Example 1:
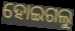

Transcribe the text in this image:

ହୋଇଗଲୁ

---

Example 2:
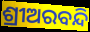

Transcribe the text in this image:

ଶ୍ରୀଅରବନ୍ଦି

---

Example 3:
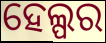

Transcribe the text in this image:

ହେଲ୍ପର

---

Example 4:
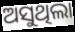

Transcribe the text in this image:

ଅସୁଥିଲା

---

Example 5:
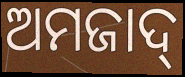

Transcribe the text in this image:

ଅମଜାଦ୍